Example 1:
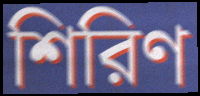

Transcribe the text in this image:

শিরিণ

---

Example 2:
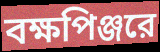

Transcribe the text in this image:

বক্ষপিঞ্জরে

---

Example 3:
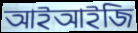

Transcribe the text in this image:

আইআইজি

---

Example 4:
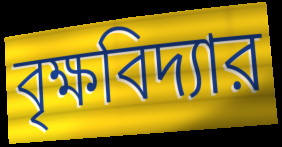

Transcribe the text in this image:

বৃক্ষবিদ্যার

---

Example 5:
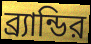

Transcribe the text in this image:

ব্র্যান্ডির